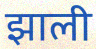
झाली